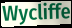
Wycliffe